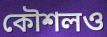
কৌশলও